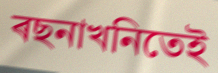
ৰছনাখনিতেই